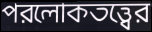
পরলোকতত্ত্বের